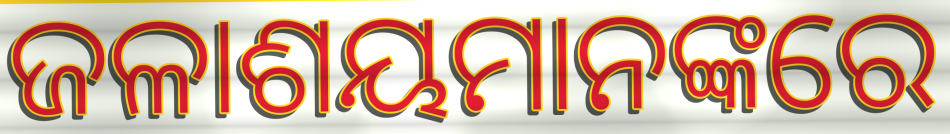
ଜଳାଶୟମାନଙ୍କରେ